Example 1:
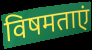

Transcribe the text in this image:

विषमताएं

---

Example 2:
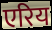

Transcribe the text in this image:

एरिय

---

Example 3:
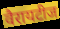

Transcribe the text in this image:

वैरायटीज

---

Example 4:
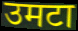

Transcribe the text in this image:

उमटा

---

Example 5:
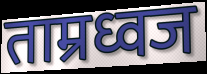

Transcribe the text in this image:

ताम्रध्वज